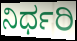
ನಿರ್ಧರಿ